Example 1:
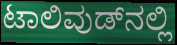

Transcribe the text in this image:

ಟಾಲಿವುಡ್‌ನಲ್ಲಿ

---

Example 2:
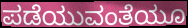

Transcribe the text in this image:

ಪಡೆಯುವಂತೆಯೂ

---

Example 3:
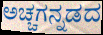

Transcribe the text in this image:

ಅಚ್ಚಗನ್ನಡದ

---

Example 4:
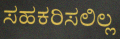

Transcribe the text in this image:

ಸಹಕರಿಸಲಿಲ್ಲ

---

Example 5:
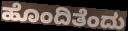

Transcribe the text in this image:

ಹೊಂದಿತೆಂದು